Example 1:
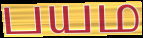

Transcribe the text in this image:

பயம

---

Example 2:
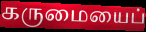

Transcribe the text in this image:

கருமையைப்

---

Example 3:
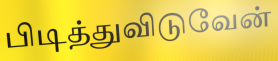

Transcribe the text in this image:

பிடித்துவிடுவேன்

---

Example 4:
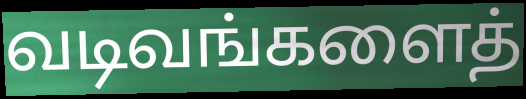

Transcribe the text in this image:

வடிவங்களைத்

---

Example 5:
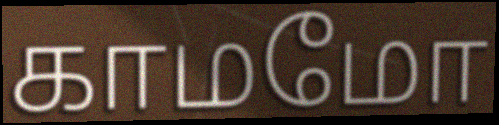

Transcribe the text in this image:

காமமோ